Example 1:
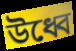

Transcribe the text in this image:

উধ্বে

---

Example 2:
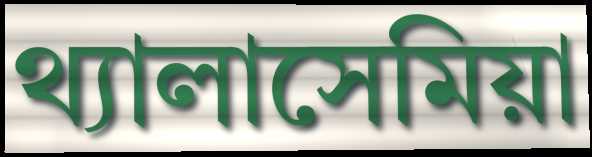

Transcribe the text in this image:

থ্যালাসেমিয়া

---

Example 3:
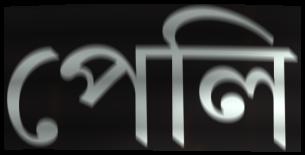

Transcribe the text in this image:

পেলি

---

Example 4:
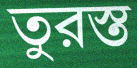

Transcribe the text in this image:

তুরস্ত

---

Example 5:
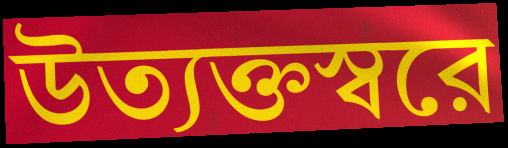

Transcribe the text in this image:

উত্যক্তস্বরে